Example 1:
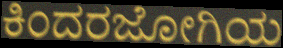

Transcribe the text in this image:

ಕಿಂದರಜೋಗಿಯ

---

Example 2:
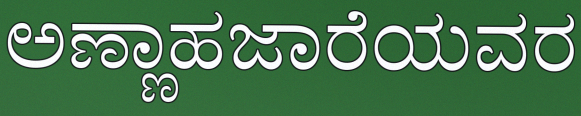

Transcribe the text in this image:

ಅಣ್ಣಾಹಜಾರೆಯವರ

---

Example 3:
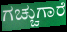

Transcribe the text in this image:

ಗಚ್ಚುಗಾರೆ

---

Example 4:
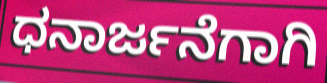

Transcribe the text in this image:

ಧನಾರ್ಜನೆಗಾಗಿ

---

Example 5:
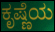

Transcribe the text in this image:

ಕೃಷ್ಣೆಯ